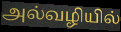
அல்வழியில்